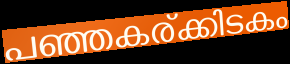
പഞ്ഞകര്ക്കിടകം